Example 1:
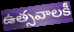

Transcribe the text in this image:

ఉత్సవాలకీ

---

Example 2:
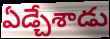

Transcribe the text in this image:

ఏడ్చేశాడు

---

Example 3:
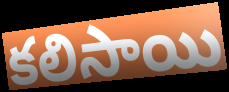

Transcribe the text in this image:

కలిసాయి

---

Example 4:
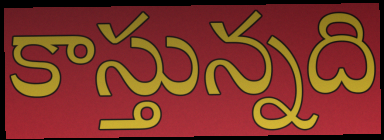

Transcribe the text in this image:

కాస్తున్నది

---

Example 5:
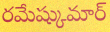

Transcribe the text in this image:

రమేష్కుమార్